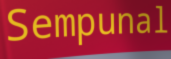
Sempunal